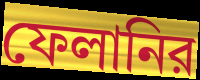
ফেলানির